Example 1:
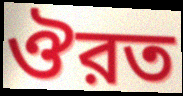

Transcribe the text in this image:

ঔরত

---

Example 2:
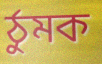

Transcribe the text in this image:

ঠুমক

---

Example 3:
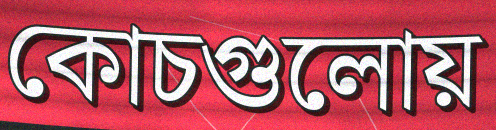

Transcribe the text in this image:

কোচগুলোয়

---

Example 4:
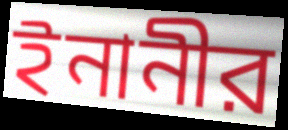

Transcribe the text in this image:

ইনানীর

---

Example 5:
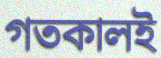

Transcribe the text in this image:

গতকালই